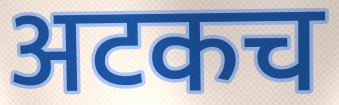
अटकच